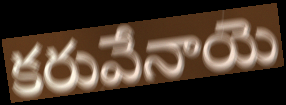
కరువేనాయె